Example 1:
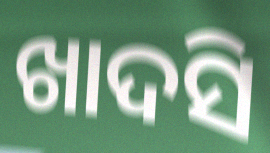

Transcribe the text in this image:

ଖାଦସି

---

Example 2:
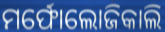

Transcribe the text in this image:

ମର୍ଫୋଲୋଜିକାଲି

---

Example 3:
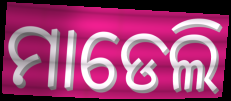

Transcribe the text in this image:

ମାଡେଲି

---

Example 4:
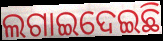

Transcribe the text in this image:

ଲଗାଇଦେଇଛି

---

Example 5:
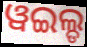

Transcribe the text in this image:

ୱଇଲ୍ଡ